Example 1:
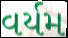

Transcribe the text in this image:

વર્યમ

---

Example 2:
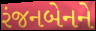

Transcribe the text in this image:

રંજનબેનને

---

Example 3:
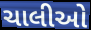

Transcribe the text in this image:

ચાલીઓ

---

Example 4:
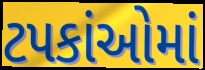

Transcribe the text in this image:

ટપકાંઓમાં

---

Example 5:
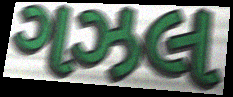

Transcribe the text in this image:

ગઝલ